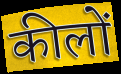
कीलों